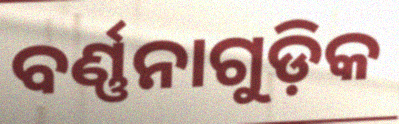
ବର୍ଣ୍ଣନାଗୁଡ଼ିକ